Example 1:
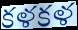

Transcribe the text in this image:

కళకళ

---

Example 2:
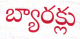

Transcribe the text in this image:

బ్యారక్లు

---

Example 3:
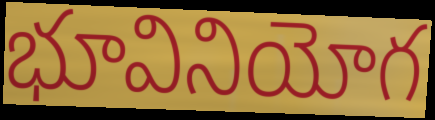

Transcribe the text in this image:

భూవినియోగ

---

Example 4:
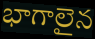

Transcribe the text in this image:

భాగాలైన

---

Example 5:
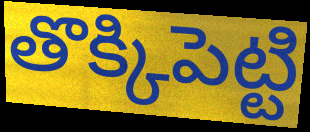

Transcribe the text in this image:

తొక్కిపెట్టి